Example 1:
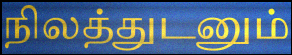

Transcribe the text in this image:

நிலத்துடனும்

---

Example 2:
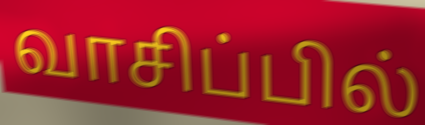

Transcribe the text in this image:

வாசிப்பில்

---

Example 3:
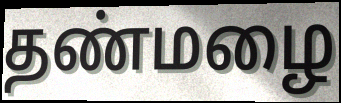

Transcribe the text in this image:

தண்மழை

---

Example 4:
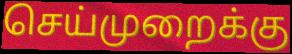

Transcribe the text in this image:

செய்முறைக்கு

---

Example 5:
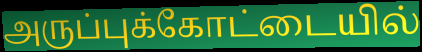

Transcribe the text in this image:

அருப்புக்கோட்டையில்